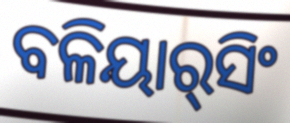
ବଳିୟାର୍‌ସିଂ